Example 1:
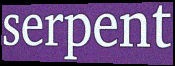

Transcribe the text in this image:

serpent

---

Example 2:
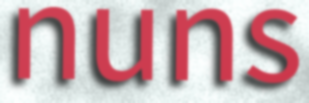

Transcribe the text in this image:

nuns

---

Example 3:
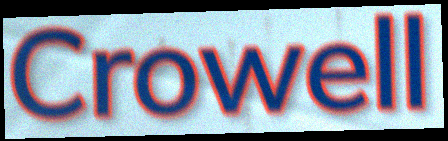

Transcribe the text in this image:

Crowell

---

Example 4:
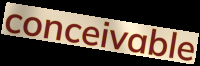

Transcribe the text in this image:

conceivable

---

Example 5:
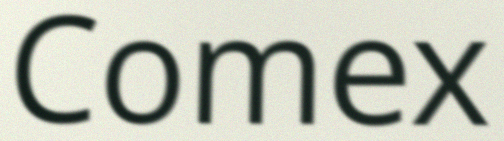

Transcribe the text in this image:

Comex